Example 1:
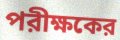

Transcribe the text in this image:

পরীক্ষকের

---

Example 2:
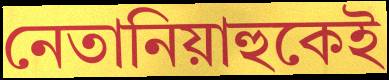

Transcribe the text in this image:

নেতানিয়াহুকেই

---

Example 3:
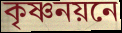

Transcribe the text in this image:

কৃষ্ণনয়নে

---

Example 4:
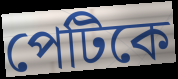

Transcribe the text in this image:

পেটিকে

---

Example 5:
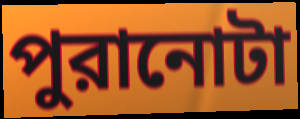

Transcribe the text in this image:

পুরানোটা